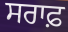
ਸਰਾਫ਼